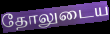
தோலுடைய